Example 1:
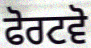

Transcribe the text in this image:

ਫੋਰਟਵੋ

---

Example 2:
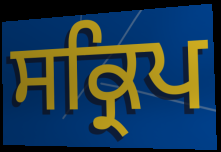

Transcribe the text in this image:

ਸਕ੍ਰਿਪ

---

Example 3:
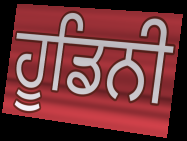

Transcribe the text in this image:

ਹੂਡਿਨੀ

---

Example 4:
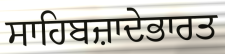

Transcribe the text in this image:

ਸਾਹਿਬਜ਼ਾਦੇਭਾਰਤ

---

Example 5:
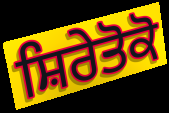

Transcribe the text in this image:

ਸ਼ਿਰੇਤੋਕੋ